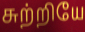
சுற்றியே